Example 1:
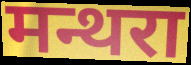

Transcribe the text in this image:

मन्थरा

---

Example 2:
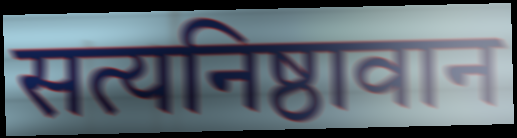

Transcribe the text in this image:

सत्यनिष्ठावान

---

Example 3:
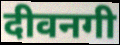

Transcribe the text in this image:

दीवनगी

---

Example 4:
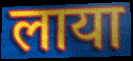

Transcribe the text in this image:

लाया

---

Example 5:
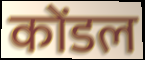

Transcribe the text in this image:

कोंडल